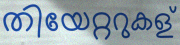
തിയേറ്ററുകള്